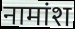
नामांश